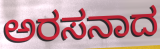
ಅರಸನಾದ